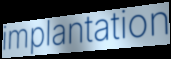
implantation